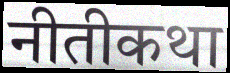
नीतीकथा